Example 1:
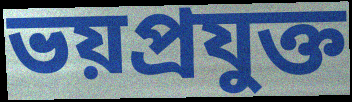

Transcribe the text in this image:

ভয়প্রযুক্ত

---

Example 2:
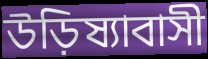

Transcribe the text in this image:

উড়িষ্যাবাসী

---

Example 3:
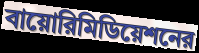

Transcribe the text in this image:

বায়োরিমিডিয়েশনের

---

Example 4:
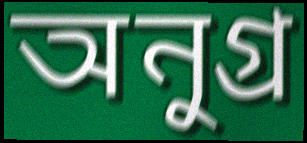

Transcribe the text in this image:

অনুগ্র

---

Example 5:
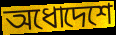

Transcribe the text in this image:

অধোদেশে